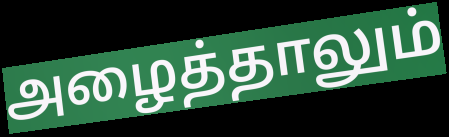
அழைத்தாலும்